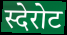
स्देरोट